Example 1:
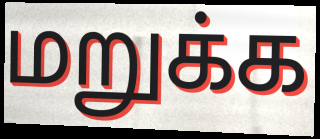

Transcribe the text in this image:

மறுக்க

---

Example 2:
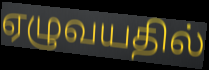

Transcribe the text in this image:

ஏழுவயதில்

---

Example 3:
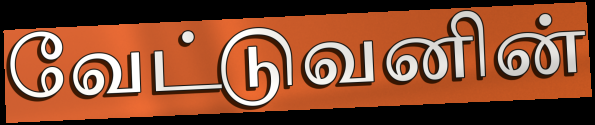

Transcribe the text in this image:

வேட்டுவனின்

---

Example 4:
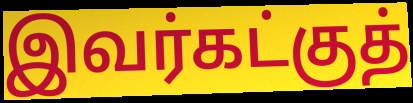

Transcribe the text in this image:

இவர்கட்குத்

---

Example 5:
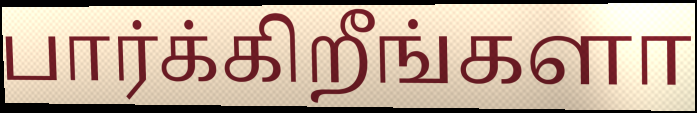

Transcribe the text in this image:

பார்க்கிறீங்களா